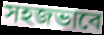
সহজভাবে